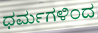
ಧರ್ಮಗಳಿಂದ